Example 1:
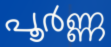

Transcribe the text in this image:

പൂർണ്ണ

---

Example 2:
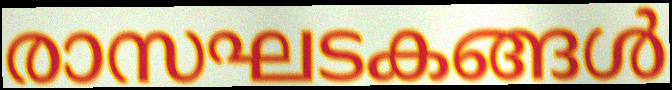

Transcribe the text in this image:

രാസഘടകങ്ങൾ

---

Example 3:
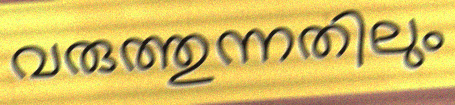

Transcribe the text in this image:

വരുത്തുന്നതിലും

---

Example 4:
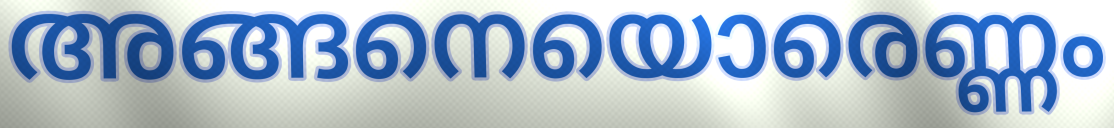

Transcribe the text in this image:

അങ്ങനെയൊരെണ്ണം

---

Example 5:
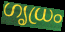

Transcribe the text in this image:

ഗൃധ്രം